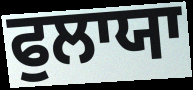
ਫੁਲਾਯਾ